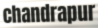
chandrapur